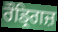
ਰੌਡ੍ਰਿਗਜ਼